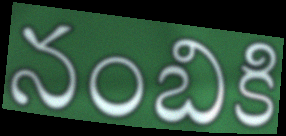
నంబికి